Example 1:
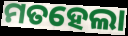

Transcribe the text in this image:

ମତହେଲା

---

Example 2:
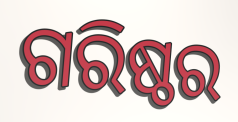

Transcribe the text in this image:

ଗରିଷ୍ଠର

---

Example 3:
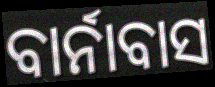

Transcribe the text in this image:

ବାର୍ନାବାସ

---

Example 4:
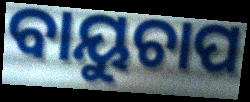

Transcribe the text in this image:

ବାୟୁଚାପ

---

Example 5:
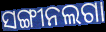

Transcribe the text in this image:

ସଙ୍ଗୀନଲଗା